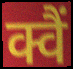
क्वैं